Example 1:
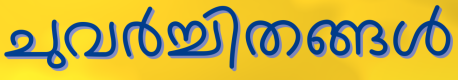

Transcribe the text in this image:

ചുവർച്ചിതങ്ങൾ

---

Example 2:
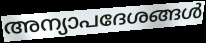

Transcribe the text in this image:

അന്യാപദേശങ്ങൾ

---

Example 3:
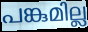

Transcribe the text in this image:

പങ്കുമില്ല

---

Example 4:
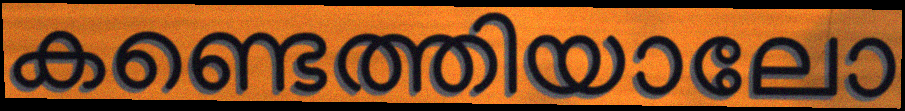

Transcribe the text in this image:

കണ്ടെത്തിയാലോ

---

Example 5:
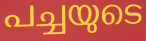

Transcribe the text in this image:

പച്ചയുടെ